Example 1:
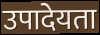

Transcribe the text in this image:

उपादेयता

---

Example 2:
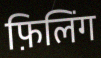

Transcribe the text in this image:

फ़िलिंग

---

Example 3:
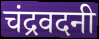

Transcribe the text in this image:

चंद्रवदनी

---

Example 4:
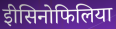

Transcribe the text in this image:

ईोसिनोफिलिया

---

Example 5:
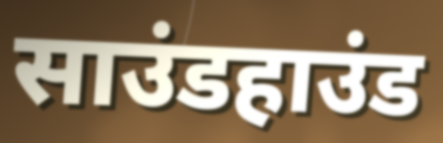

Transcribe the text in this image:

साउंडहाउंड